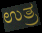
ಉತ್ರ